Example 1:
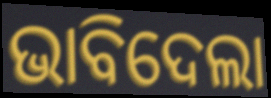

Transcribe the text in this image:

ଭାବିଦେଲା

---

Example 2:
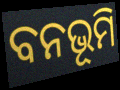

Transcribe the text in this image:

ବନଭୂମି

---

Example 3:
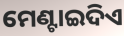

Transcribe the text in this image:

ମେଣ୍ଟାଇଦିଏ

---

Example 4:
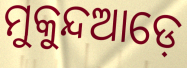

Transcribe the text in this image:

ମୁକୁନ୍ଦଆଡ଼େ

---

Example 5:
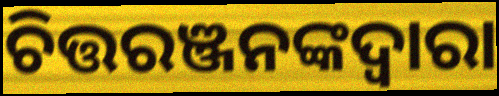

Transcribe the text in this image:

ଚିତ୍ତରଞ୍ଜନଙ୍କଦ୍ଵାରା